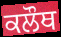
ਕਲੌਥ